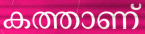
കത്താണ്